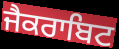
ਜੈਕਰਾਬਿਟ